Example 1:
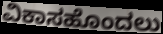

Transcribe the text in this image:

ವಿಕಾಸಹೊಂದಲು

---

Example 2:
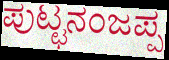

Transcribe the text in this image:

ಪುಟ್ಟನಂಜಪ್ಪ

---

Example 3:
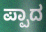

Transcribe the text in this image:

ಪ್ಪಾದ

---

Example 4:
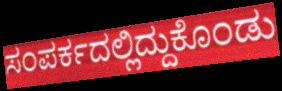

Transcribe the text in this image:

ಸಂಪರ್ಕದಲ್ಲಿದ್ದುಕೊಂಡು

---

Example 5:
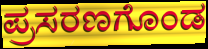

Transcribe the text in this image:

ಪ್ರಸರಣಗೊಂಡ